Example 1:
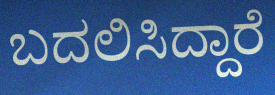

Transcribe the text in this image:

ಬದಲಿಸಿದ್ದಾರೆ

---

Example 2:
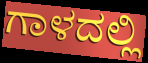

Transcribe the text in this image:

ಗಾಳದಲ್ಲಿ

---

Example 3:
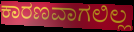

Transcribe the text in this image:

ಕಾರಣವಾಗಲಿಲ್ಲ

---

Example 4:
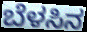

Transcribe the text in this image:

ಬೆಳಸಿನ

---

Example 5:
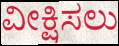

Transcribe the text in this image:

ವೀಕ್ಷಿಸಲು